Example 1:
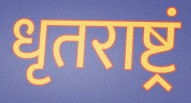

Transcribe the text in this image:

धृतराष्ट्रं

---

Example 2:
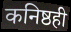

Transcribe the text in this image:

कनिष्ठही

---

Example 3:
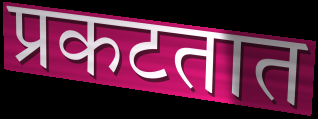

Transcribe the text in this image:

प्रकटतात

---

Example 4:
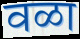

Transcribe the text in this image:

वळा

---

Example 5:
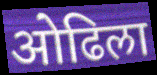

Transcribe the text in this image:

ओढिला